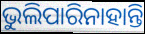
ଭୁଲିପାରିନାହାନ୍ତି